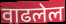
वाढलेल